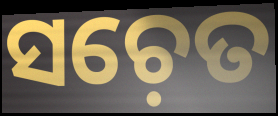
ସଚ଼େତ